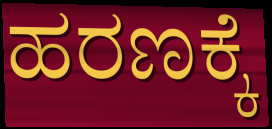
ಹರಣಕ್ಕೆ